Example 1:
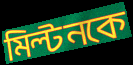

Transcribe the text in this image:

মিল্টনকে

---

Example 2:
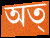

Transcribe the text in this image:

অত্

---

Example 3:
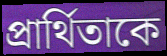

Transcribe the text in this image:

প্রার্থিতাকে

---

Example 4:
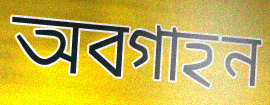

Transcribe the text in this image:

অবগাহন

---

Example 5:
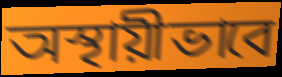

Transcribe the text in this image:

অস্থায়ীভাবে